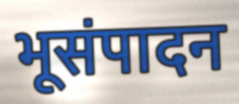
भूसंपादन